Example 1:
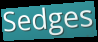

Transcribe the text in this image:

Sedges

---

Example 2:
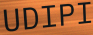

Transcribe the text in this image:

UDIPI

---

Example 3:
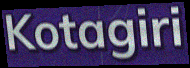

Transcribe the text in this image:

Kotagiri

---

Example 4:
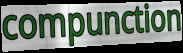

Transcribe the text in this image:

compunction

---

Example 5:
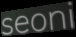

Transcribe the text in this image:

seoni